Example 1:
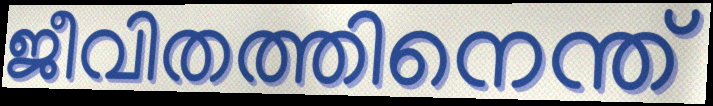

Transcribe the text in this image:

ജീവിതത്തിനെന്ത്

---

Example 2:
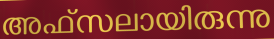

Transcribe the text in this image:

അഫ്സലായിരുന്നു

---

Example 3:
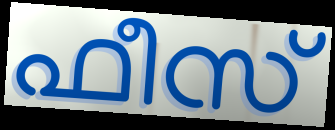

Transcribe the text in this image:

ഫീസ്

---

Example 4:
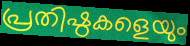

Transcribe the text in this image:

പ്രതിഷ്ഠകളെയും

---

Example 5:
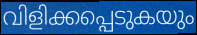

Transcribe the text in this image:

വിളിക്കപ്പെടുകയും